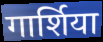
गार्शिया